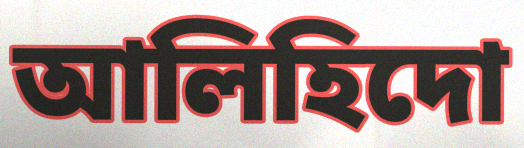
আলিহিদো